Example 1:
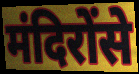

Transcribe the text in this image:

मंदिरोंसे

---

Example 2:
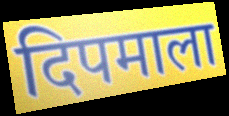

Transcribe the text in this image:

दिपमाला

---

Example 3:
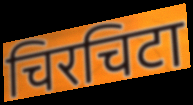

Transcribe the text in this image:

चिरचिटा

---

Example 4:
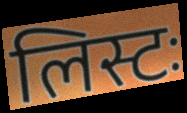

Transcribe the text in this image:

लिस्टः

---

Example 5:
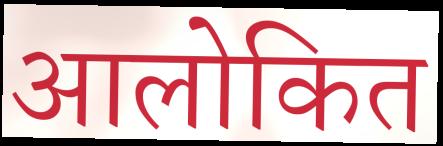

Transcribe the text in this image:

आलोकित